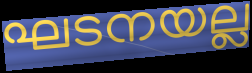
ഘടനയല്ല